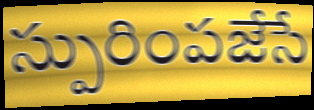
స్పురింపజేసే